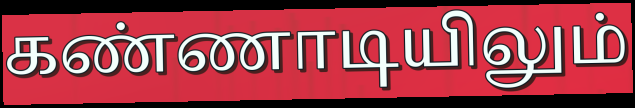
கண்ணாடியிலும்